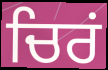
ਚਿਰਂ